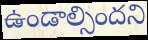
ఉండాల్సిందని